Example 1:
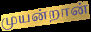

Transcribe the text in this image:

முயன்றான்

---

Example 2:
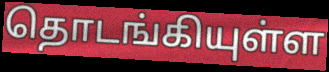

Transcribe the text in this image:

தொடங்கியுள்ள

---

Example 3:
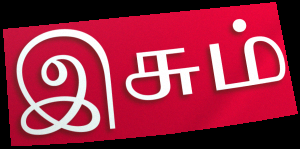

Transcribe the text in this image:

இசும்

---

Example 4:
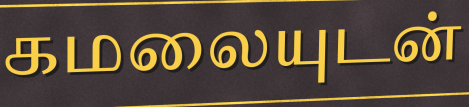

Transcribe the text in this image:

கமலையுடன்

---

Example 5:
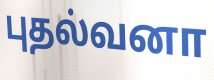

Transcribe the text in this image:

புதல்வனா